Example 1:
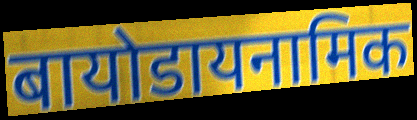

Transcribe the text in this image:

बायोडायनामिक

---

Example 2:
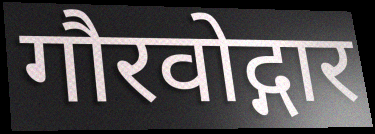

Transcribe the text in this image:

गौरवोद्गार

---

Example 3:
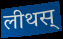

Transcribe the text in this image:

लीथस्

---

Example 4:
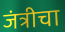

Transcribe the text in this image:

जंत्रीचा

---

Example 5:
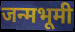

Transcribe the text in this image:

जन्मभूमी